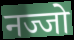
नज्जो